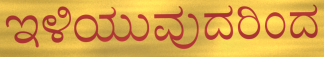
ಇಳಿಯುವುದರಿಂದ